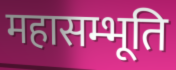
महासम्भूति